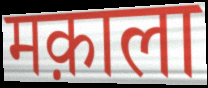
मक़ाला